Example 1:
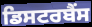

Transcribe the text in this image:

ਡਿਸਟਰਬੈਂਸ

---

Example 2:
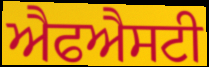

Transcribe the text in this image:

ਐਫਐਸਟੀ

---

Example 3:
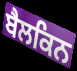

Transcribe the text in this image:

ਬੈਲਕਿਨ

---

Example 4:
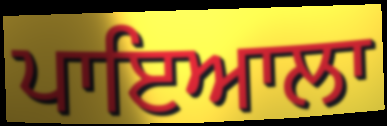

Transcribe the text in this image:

ਪਾਇਆਲਾ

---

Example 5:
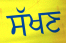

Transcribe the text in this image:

ਸੱਖਣ